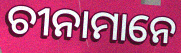
ଚୀନାମାନେ